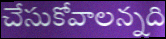
చేసుకోవాలన్నది